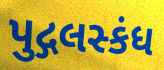
પુદ્ગલસ્કંધ